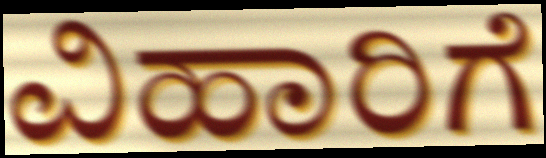
ವಿಹಾರಿಗೆ